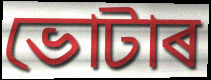
ভোটাৰ